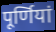
पूर्णियां